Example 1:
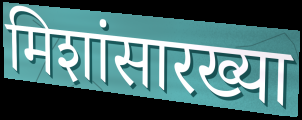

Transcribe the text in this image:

मिशांसारख्या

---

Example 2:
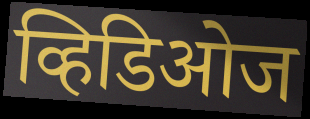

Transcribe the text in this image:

व्हिडिओज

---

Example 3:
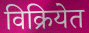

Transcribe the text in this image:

विक्रियेत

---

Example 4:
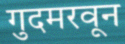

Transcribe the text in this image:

गुदमरवून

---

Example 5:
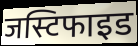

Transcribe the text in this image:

जस्टिफाइड